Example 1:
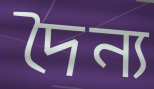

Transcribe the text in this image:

দৈন্য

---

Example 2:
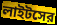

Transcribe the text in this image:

লাইটসের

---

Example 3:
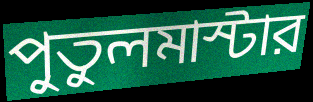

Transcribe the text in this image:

পুতুলমাস্টার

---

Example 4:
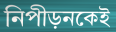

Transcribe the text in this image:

নিপীড়নকেই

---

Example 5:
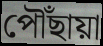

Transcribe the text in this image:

পৌঁছায়া